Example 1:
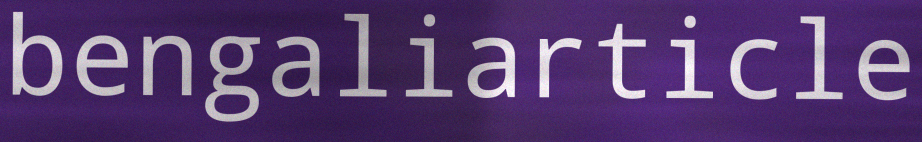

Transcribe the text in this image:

bengaliarticle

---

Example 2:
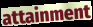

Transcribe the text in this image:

attainment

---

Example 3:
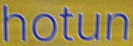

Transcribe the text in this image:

hotun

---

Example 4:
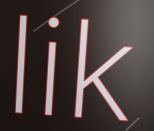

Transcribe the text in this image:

lik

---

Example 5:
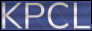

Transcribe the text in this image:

KPCL